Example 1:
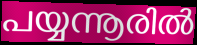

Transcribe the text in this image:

പയ്യന്നൂരിൽ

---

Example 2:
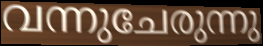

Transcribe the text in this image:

വന്നുചേരുന്നു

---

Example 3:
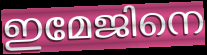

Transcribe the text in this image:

ഇമേജിനെ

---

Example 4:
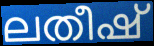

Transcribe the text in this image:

ലതീഷ്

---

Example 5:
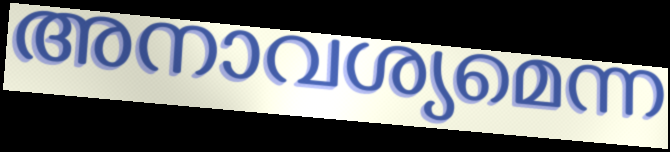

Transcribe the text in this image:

അനാവശ്യമെന്ന